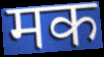
मक